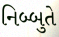
નિબ્બુતે